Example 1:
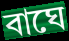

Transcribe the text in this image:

বাঘে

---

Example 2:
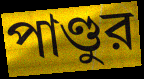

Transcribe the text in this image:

পাণ্ডুর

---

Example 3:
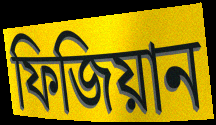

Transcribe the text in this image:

ফিজিয়ান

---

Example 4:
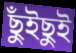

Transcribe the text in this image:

ছুঁইছুই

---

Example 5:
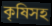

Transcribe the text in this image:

কৃষিসহ